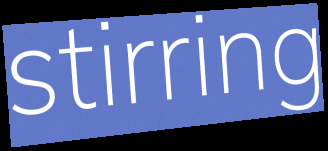
stirring